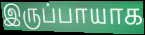
இருப்பாயாக